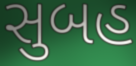
સુબહ